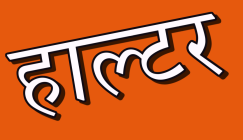
हाल्टर